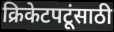
क्रिकेटपटूंसाठी